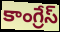
కాంగ్రేస్